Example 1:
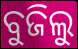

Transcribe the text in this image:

ବୁଜିଲୁ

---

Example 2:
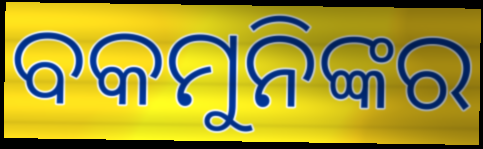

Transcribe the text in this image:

ବକମୁନିଙ୍କର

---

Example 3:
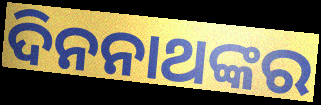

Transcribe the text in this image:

ଦିନନାଥଙ୍କର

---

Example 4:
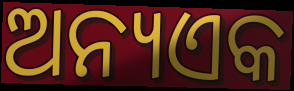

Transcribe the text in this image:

ଅନ୍ୟଏକ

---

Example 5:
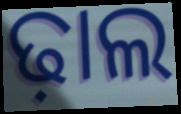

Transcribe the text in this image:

ଢ଼ାଲ